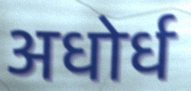
अधोर्ध